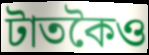
টাতকৈও